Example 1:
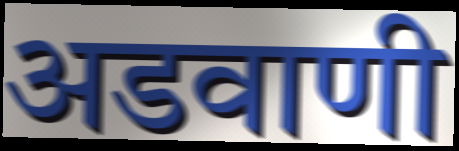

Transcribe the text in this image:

अडवाणी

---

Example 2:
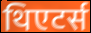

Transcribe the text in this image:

थिएटर्स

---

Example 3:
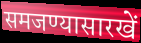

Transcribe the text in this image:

समजण्यासारखें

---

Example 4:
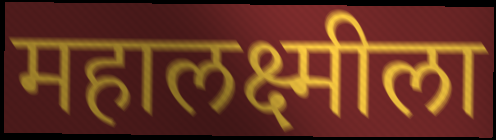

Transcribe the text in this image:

महालक्ष्मीला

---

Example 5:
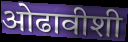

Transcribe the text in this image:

ओढावीशी